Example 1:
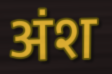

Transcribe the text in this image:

अंश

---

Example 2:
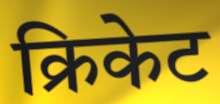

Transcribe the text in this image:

क्रिकेट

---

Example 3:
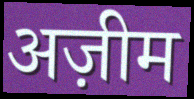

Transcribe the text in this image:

अज़ीम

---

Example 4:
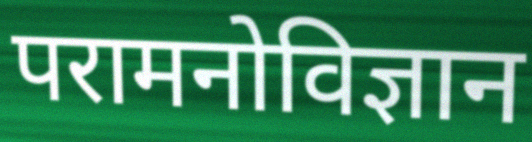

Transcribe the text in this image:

परामनोविज्ञान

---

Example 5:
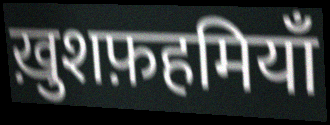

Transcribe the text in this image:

ख़ुशफ़हमियाँ